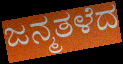
ಜನ್ಮತಳೆದ